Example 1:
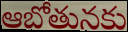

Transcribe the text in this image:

ఆబోతునకు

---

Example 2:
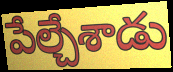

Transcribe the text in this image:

పేల్చేశాడు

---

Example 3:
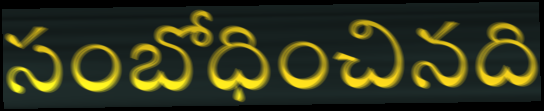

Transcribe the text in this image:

సంబోధించినది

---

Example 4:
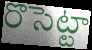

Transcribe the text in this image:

రొసెట్టా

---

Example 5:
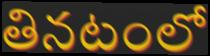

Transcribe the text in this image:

తినటంలో